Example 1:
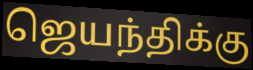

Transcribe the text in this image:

ஜெயந்திக்கு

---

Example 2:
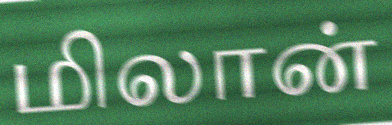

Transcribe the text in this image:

மிலான்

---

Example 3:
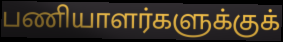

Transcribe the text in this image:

பணியாளர்களுக்குக்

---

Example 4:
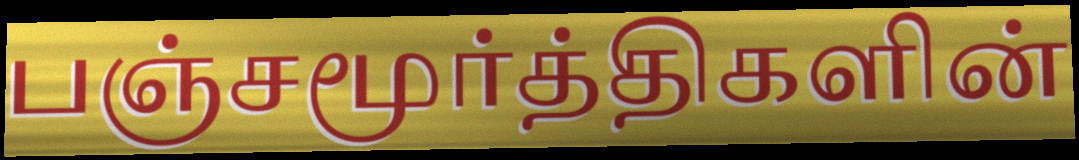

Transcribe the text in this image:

பஞ்சமூர்த்திகளின்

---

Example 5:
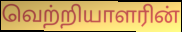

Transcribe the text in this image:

வெற்றியாளரின்